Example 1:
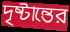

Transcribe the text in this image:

দৃষ্টান্তের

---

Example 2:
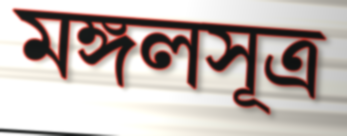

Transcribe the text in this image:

মঙ্গলসূত্র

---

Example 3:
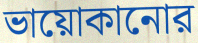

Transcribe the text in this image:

ভায়োকানোর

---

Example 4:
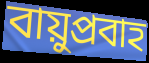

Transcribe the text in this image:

বায়ুপ্রবাহ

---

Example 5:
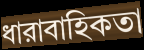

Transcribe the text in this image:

ধারাবাহিকতা